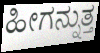
ಹೀಗನ್ನುತ್ತ